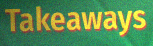
Takeaways